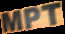
MPT